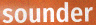
sounder